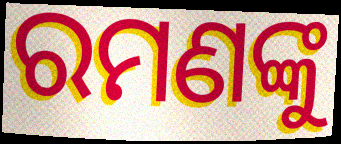
ରମଣଙ୍କୁ